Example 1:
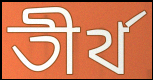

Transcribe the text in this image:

তীৰ্থ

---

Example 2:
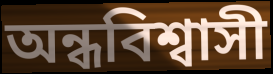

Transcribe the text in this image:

অন্ধবিশ্বাসী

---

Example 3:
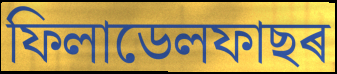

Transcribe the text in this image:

ফিলাডেলফাছৰ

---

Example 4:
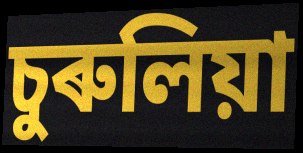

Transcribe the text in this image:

চুৰুলিয়া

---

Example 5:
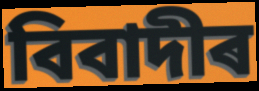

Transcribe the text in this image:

বিবাদীৰ